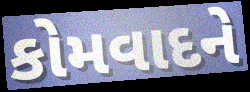
કોમવાદને